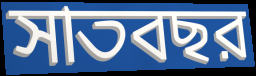
সাতবছর